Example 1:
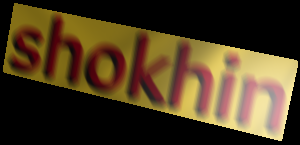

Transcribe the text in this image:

shokhin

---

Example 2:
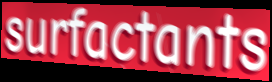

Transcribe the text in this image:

surfactants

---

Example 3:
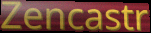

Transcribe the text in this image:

Zencastr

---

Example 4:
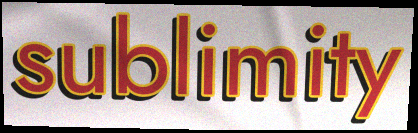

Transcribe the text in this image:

sublimity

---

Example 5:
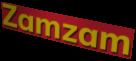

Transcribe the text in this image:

Zamzam